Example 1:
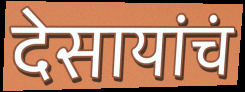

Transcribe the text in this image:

देसायांचं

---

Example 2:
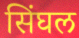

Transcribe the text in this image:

सिंघल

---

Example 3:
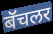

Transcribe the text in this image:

बॅचलर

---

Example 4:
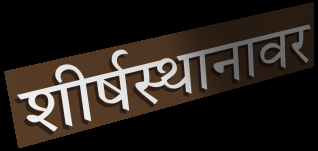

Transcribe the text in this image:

शीर्षस्थानावर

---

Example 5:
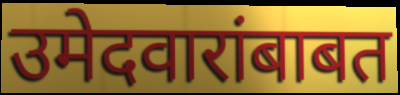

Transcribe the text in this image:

उमेदवारांबाबत